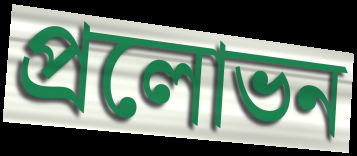
প্ৰলোভন